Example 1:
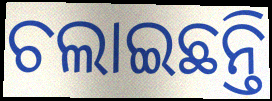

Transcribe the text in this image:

ଚଲାଇଛନ୍ତି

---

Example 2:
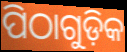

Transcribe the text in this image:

ପିଠାଗୁଡ଼ିକ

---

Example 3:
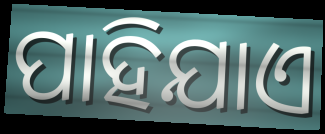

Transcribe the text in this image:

ପାହିଯାଏ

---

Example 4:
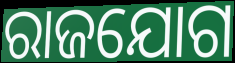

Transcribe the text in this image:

ରାଜଯୋଗ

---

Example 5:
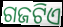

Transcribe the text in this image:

ଗଜଟିଏ